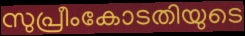
സുപ്രീംകോടതിയുടെ